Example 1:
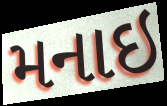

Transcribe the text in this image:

મનાઇ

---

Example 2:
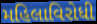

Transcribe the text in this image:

મહિલાવિરોધી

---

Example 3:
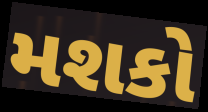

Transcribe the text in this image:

મશકો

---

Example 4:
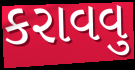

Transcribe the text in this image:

કરાવવુ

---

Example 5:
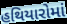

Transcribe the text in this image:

હથિયારોમાં